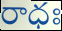
రాధః